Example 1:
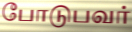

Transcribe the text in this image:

போடுபவர்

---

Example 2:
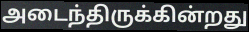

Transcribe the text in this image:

அடைந்திருக்கின்றது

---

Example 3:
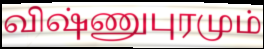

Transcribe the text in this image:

விஷ்ணுபுரமும்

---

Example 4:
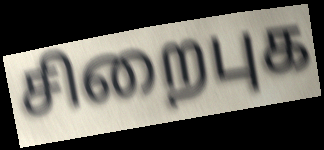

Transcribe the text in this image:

சிறைபுக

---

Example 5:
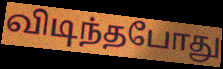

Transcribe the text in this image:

விடிந்தபோது